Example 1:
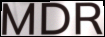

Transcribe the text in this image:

MDR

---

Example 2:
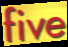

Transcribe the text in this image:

five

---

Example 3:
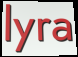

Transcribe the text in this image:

lyra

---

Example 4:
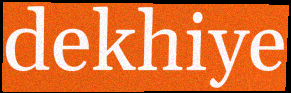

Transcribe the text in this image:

dekhiye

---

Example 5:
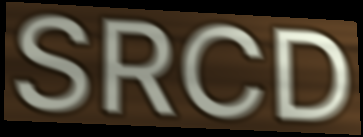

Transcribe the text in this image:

SRCD